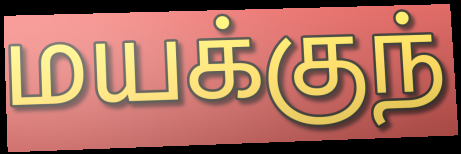
மயக்குந்